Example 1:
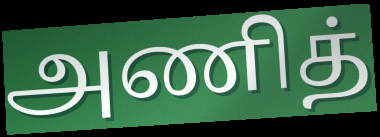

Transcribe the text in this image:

அணித்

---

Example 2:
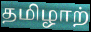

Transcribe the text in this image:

தமிழாற்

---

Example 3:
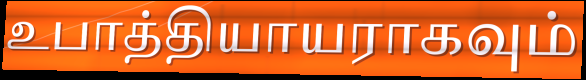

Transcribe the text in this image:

உபாத்தியாயராகவும்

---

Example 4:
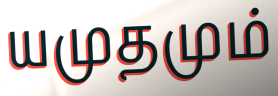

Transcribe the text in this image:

யமுதமும்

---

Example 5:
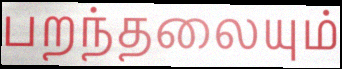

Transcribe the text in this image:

பறந்தலையும்